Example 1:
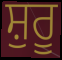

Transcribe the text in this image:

ਸ਼ੁਰੂ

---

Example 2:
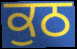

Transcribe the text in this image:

ਕੁਠ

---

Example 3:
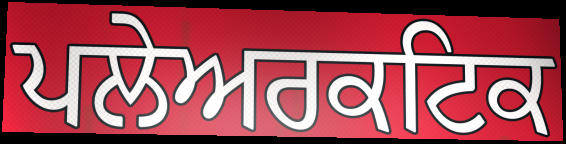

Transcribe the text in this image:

ਪਲੇਅਰਕਟਿਕ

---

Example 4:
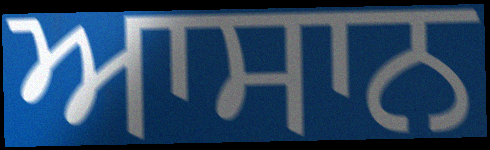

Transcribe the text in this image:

ਆਸਾਨ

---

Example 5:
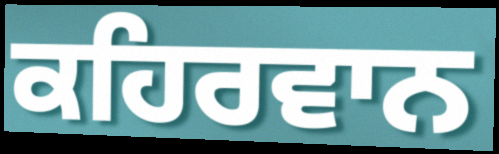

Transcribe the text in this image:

ਕਹਿਰਵਾਨ